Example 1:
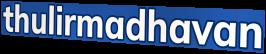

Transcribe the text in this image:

thulirmadhavan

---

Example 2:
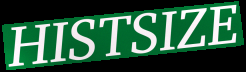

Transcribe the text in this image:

HISTSIZE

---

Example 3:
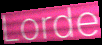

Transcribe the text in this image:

Lorde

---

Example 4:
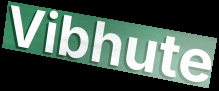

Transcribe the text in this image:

Vibhute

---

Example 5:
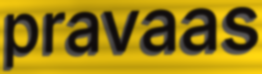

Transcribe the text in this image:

pravaas